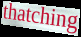
thatching